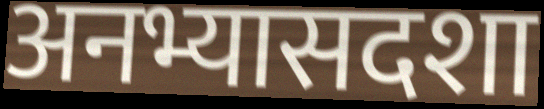
अनभ्यासदशा